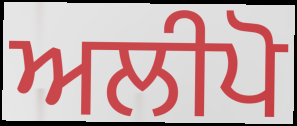
ਅਲੀਪੋ